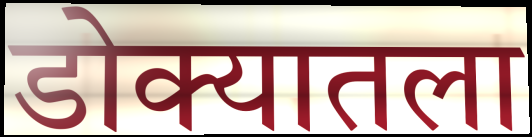
डोक्यातला